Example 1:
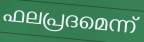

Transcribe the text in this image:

ഫലപ്രദമെന്ന്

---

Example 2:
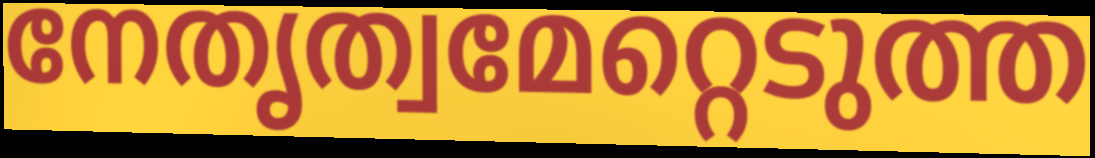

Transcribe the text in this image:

നേതൃത്വമേറ്റെടുത്ത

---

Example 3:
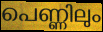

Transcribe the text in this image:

പെണ്ണിലും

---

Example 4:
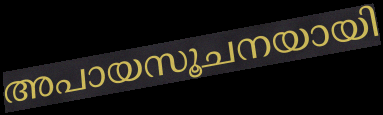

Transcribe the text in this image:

അപായസൂചനയായി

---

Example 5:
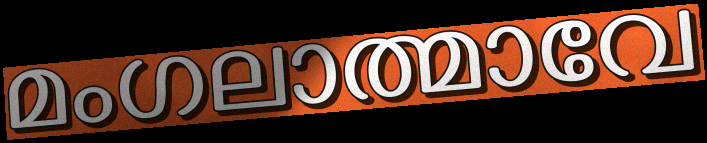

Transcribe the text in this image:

മംഗലാത്മാവേ